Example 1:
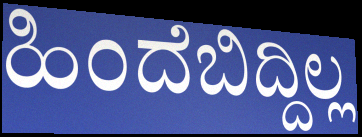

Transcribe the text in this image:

ಹಿಂದೆಬಿದ್ದಿಲ್ಲ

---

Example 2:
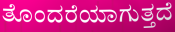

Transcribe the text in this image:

ತೊಂದರೆಯಾಗುತ್ತದೆ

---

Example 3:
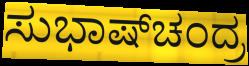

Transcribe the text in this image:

ಸುಭಾಷ್‌ಚಂದ್ರ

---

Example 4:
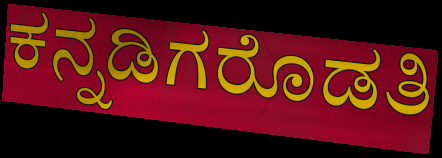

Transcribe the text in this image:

ಕನ್ನಡಿಗರೊಡತಿ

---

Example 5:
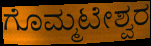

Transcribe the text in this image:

ಗೊಮ್ಮಟೇಶ್ವರ